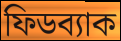
ফিডব্যাক